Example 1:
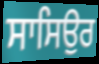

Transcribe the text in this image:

ਸਾਸਿਉਰ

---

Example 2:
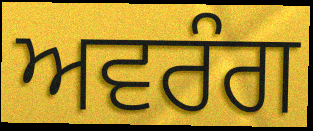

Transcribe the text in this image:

ਅਵਰੰਗ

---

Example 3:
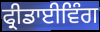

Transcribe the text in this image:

ਫ੍ਰੀਡਾਈਵਿੰਗ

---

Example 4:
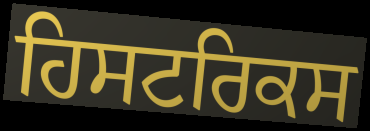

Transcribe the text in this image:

ਹਿਸਟਰਿਕਸ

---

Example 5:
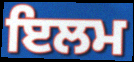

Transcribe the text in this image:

ਇਲਮ